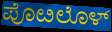
ಪೊೞಲೊಳ್